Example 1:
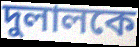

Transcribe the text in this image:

দুলালকে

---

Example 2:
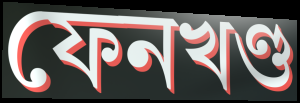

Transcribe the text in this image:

ফেনখণ্ড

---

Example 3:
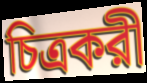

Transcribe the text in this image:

চিত্রকরী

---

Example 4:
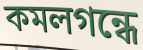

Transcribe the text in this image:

কমলগন্ধে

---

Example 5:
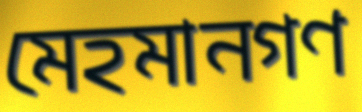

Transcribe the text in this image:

মেহমানগণ